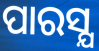
ପାରସ୍ଯ